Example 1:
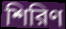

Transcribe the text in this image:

শিরিণ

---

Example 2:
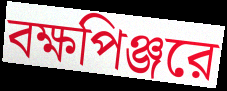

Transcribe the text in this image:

বক্ষপিঞ্জরে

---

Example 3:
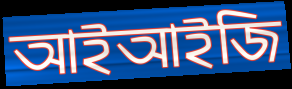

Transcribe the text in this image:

আইআইজি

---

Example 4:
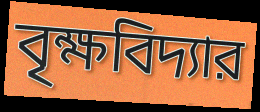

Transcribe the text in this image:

বৃক্ষবিদ্যার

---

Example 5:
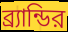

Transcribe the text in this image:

ব্র্যান্ডির